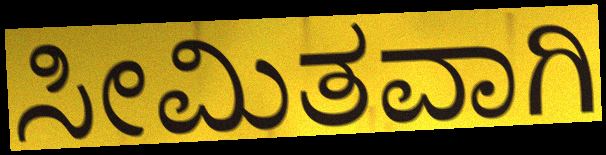
ಸೀಮಿತವಾಗಿ